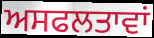
ਅਸਫਲਤਾਵਾਂ